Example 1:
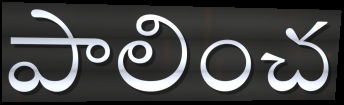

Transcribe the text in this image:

పాలించ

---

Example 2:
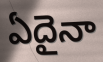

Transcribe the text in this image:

ఏదైనా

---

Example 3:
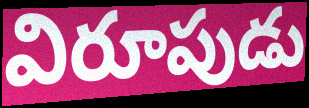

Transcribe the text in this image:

విరూపుడు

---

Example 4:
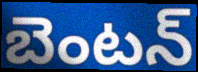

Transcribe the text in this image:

బెంటన్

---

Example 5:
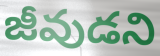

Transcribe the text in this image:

జీవుడని